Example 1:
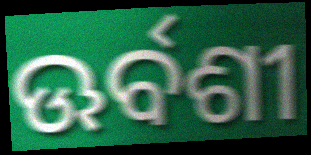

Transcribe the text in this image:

ଊର୍ବଶୀ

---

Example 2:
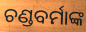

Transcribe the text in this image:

ଚଣ୍ଡବର୍ମାଙ୍କ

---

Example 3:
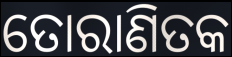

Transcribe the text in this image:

ତୋରାଣିତକ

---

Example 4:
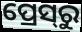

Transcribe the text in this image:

ପ୍ରେସ୍‍ରୁ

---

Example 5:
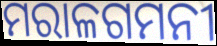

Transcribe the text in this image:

ମରାଳଗମନୀ